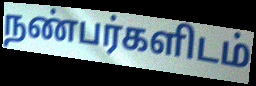
நண்பர்களிடம்